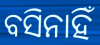
ବସିନାହିଁ